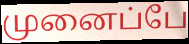
முனைப்பே